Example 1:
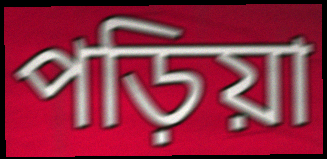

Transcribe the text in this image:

পড়িয়া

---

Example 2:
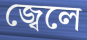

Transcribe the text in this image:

জ্বেলে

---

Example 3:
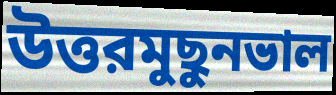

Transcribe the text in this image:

উত্তরমুছুনভাল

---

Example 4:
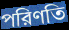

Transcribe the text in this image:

পরিণতি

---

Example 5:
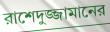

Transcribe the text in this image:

রাশেদুজ্জামানের